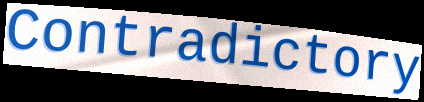
Contradictory